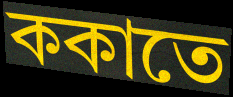
ককাতে